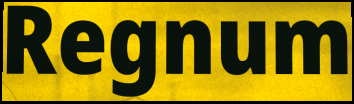
Regnum